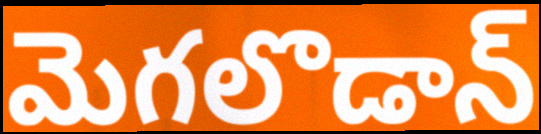
మెగలొడాన్